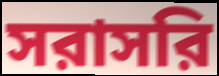
সরাসরি